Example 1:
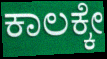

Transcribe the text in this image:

ಕಾಲಕ್ಕೇ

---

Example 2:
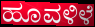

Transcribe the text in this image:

ಹೂವಳಿಳೆ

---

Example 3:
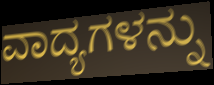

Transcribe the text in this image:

ವಾದ್ಯಗಳನ್ನು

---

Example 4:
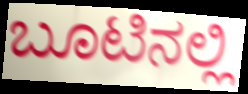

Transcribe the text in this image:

ಬೂಟಿನಲ್ಲಿ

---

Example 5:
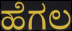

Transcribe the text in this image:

ಹೆಗಲ